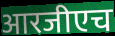
आरजीएच